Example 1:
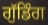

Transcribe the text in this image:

ਗੁੱਡਿੰਗ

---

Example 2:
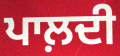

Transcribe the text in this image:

ਪਾਲ਼ਦੀ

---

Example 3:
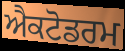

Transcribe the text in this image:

ਐਕਟੋਡਰਮ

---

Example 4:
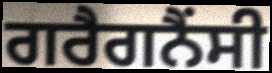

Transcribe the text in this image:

ਗਰੈਗਨੈਂਸੀ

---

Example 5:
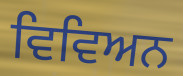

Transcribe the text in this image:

ਵਿਵਿਅਨ